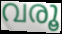
വരൂ